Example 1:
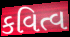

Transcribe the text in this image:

કવિત્વ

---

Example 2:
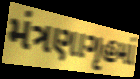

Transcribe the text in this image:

મંત્રણાગૃહમાં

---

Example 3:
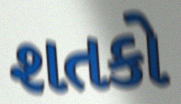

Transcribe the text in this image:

શતકો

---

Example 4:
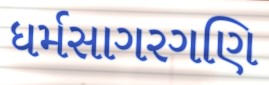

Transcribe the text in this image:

ધર્મસાગરગણિ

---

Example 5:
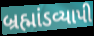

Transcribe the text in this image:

બ્રહ્માંડવ્યાપી